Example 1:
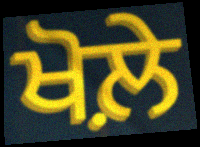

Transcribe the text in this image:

ਖੋਲ਼ੇ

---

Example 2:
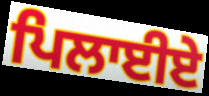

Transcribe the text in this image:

ਪਿਲਾਈਏ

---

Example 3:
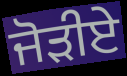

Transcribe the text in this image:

ਜੋੜੀਏ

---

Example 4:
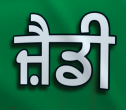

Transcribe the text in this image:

ਜ਼ੈਡੀ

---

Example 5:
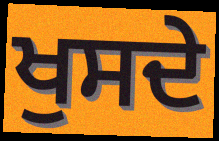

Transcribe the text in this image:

ਖੁਸਦੇ